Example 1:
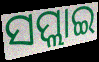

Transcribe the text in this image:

ସପ୍ଲାଇ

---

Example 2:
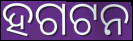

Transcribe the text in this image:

ହଗଟନ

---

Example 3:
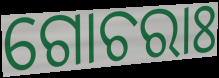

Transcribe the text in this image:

ଗୋଚରାଃ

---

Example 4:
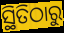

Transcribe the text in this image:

ସ୍ଥିତିଠାରୁ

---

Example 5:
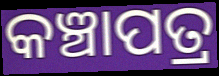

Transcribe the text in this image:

କଞ୍ଚାପତ୍ର